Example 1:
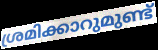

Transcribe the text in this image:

ശ്രമിക്കാറുമുണ്ട്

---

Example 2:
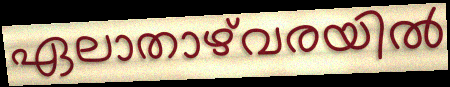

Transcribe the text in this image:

ഏലാതാഴ്‌വരയിൽ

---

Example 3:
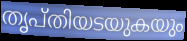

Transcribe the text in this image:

തൃപ്തിയടയുകയും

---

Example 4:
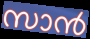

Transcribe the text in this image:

സാൻ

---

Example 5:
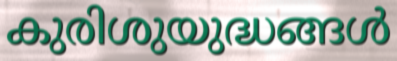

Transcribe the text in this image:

കുരിശുയുദ്ധങ്ങൾ